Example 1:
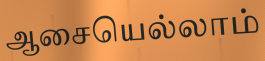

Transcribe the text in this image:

ஆசையெல்லாம்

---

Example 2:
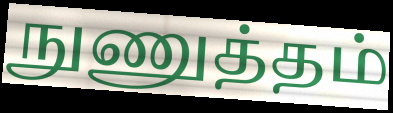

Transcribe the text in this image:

நுணுத்தம்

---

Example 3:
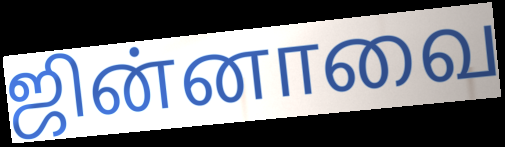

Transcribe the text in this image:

ஜின்னாவை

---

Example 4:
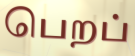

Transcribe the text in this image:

பெறப்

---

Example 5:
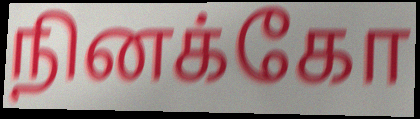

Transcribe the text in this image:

நினக்கோ